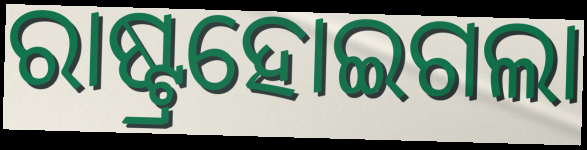
ରାଷ୍ଟ୍ରହୋଇଗଲା